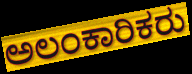
ಅಲಂಕಾರಿಕರು